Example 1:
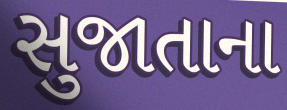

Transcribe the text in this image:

સુજાતાના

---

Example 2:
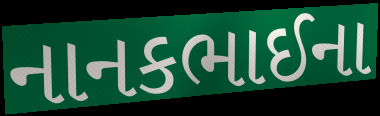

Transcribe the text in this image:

નાનકભાઈના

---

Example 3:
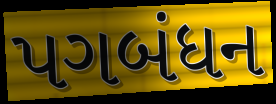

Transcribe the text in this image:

પગબંધન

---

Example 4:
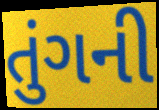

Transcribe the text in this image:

તુંગની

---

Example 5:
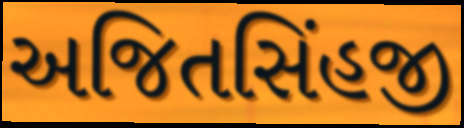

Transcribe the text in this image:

અજિતસિંહજી